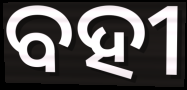
ବହୀ